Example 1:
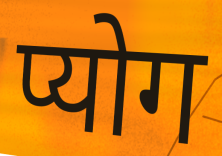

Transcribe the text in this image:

प्योग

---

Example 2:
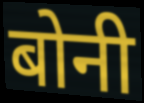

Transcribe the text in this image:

बोनी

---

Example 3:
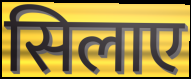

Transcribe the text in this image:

सिलाए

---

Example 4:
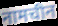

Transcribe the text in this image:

नामचीन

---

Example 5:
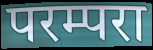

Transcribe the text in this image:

परम्परा